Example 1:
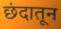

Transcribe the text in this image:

छंदातून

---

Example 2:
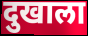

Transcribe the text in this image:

दुखाला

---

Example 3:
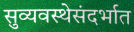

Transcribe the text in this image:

सुव्यवस्थेसंदर्भात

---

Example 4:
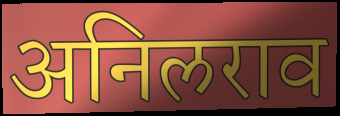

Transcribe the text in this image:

अनिलराव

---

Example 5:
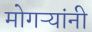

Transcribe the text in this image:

मोगऱ्यांनी